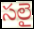
సలై